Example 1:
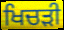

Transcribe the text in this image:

ਖਿਚੜੀ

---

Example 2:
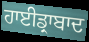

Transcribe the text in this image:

ਹਾਈਡ੍ਰਾਬਾਦ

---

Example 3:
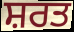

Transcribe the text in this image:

ਸ਼ਰਤ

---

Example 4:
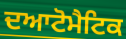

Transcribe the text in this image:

ਦਆਟੋਮੈਟਿਕ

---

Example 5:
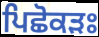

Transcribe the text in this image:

ਪਿਛੋਕੜਃ